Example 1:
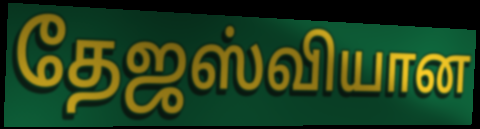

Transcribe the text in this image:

தேஜஸ்வியான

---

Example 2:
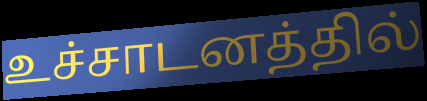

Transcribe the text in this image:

உச்சாடனத்தில்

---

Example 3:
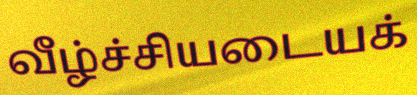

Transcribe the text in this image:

வீழ்ச்சியடையக்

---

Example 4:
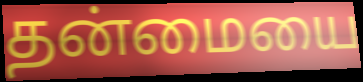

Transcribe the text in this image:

தன்மையை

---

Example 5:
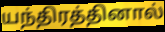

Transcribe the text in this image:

யந்திரத்தினால்